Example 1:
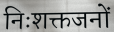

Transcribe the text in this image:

निःशक्तजनों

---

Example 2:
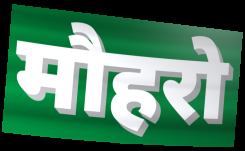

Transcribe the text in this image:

मौहरो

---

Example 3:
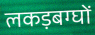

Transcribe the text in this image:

लकड़बग्घों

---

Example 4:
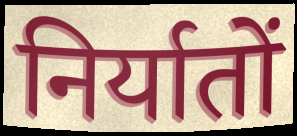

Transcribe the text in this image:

निर्यातों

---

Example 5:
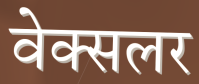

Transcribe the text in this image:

वेक्सलर